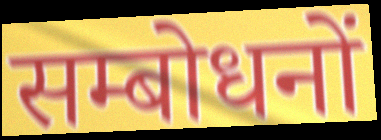
सम्बोधनों